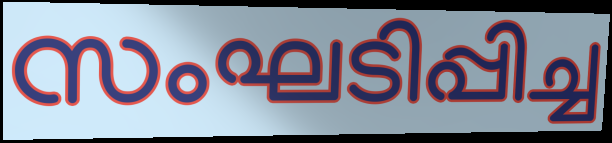
സംഘടിപ്പിച്ച